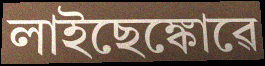
লাইছেঙ্কোৱে